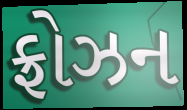
ફ્રોઝન